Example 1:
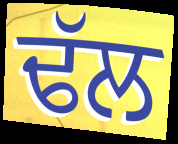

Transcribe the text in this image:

ਢੱਲ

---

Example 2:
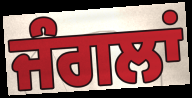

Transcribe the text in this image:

ਜੰਗਲਾਂ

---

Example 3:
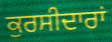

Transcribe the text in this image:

ਕੁਰਸੀਦਾਰਾਂ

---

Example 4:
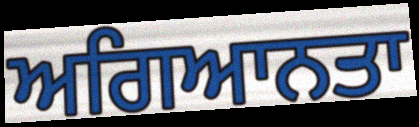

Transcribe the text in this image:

ਅਗਿਆਨਤਾ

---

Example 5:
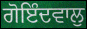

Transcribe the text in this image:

ਗੋਇੰਦਵਾਲੁ